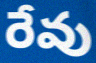
రేవు